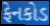
ફેનકોડ